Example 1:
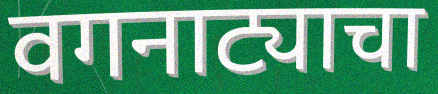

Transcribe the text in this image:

वगनाट्याचा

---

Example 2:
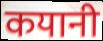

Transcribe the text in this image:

कयानी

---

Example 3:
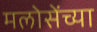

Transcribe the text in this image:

मलोसेंच्या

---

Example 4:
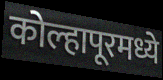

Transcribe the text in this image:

कोल्हापूरमध्ये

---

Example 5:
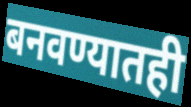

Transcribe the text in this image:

बनवण्यातही